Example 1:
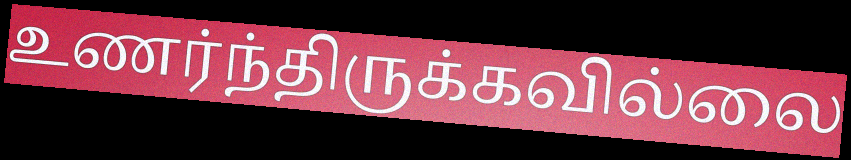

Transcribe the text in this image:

உணர்ந்திருக்கவில்லை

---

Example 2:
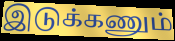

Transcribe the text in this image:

இடுக்கணும்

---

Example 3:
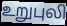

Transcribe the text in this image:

உறுபுலி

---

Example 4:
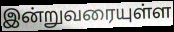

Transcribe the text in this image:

இன்றுவரையுள்ள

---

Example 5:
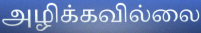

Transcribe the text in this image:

அழிக்கவில்லை